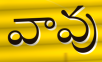
వావు